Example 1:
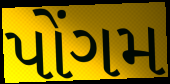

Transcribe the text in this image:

પોંગમ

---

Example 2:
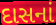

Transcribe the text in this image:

દાસનાં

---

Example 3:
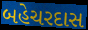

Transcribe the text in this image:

બહેચરદાસ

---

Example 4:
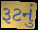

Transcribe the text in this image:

રૂટનું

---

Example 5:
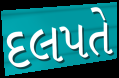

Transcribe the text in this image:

દલપતે